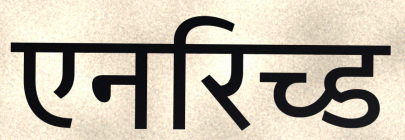
एनरिच्ड